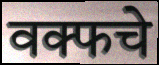
वक्फचे